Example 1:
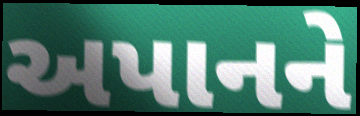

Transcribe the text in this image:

અપાનને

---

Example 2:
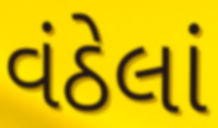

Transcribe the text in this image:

વંઠેલાં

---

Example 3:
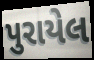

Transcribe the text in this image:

પુરાયેલ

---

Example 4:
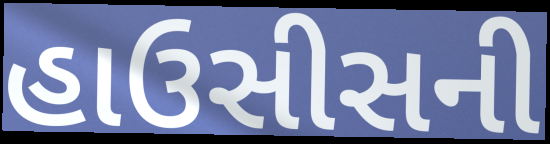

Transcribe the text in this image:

હાઉસીસની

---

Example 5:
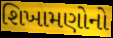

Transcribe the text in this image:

શિખામણોનો